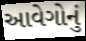
આવેગોનું